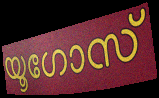
യൂഗോസ്